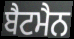
ਬੈਟਮੈਨ